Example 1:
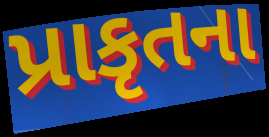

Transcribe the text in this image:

પ્રાકૃતના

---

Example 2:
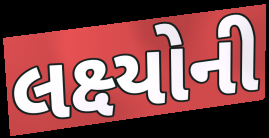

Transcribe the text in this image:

લક્ષ્યોની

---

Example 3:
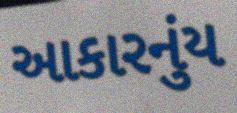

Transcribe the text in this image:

આકારનુંય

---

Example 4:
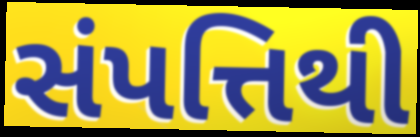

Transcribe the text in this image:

સંપત્તિથી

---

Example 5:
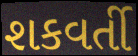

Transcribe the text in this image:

શકવર્તી